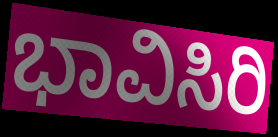
ಭಾವಿಸಿರಿ